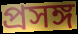
প্ৰসঙ্গ